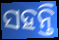
ସହନ୍ତି